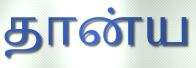
தான்ய